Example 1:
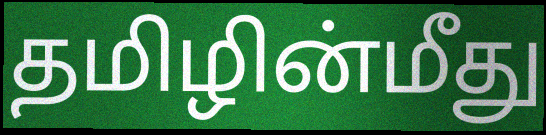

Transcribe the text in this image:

தமிழின்மீது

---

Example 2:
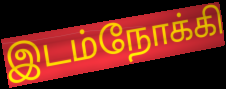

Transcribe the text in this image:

இடம்நோக்கி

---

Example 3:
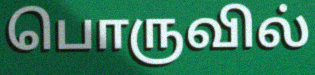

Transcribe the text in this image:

பொருவில்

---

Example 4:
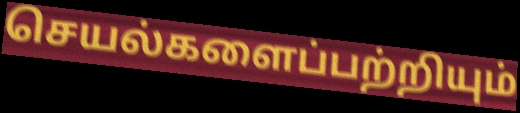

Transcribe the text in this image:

செயல்களைப்பற்றியும்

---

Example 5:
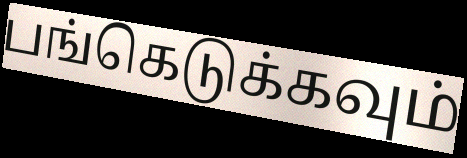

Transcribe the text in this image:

பங்கெடுக்கவும்